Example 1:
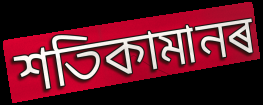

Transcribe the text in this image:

শতিকামানৰ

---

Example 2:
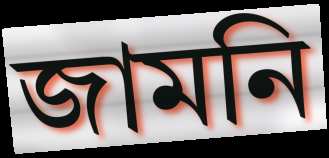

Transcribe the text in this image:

জামনি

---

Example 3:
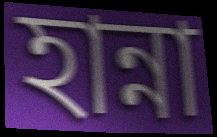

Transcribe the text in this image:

হান্না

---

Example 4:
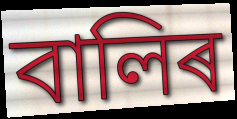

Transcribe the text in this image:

বালিৰ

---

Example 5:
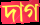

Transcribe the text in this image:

দাগ